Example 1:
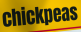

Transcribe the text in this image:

chickpeas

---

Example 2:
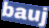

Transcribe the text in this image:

bauj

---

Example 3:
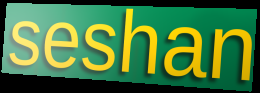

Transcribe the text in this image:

seshan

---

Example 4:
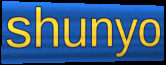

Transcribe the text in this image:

shunyo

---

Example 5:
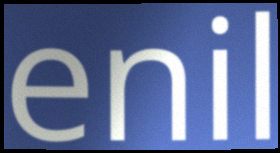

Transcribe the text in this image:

enil